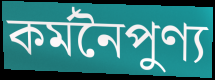
কর্মনৈপুণ্য